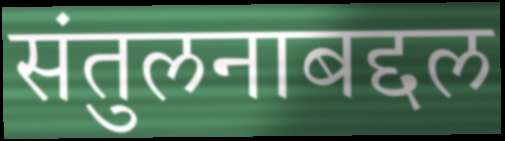
संतुलनाबद्दल